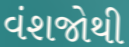
વંશજોથી